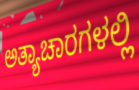
ಅತ್ಯಾಚಾರಗಳಲ್ಲಿ